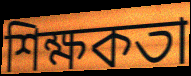
শিক্ষকতা